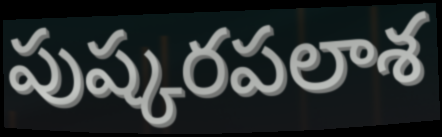
పుష్కరపలాశ